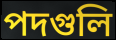
পদগুলি